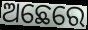
ଅଛେରେ